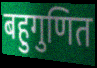
बहुगुणित